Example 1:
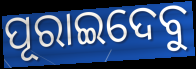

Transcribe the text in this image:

ପୂରାଇଦେବୁ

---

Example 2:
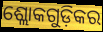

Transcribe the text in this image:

ଶ୍ଲୋକଗୁଡ଼ିକର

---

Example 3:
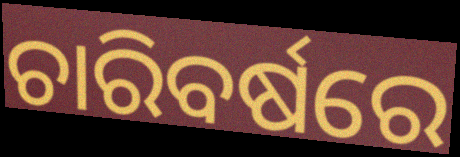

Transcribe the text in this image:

ଚାରିବର୍ଷରେ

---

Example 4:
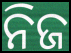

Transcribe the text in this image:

ନିଜ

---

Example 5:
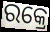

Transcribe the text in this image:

ରକ୍ରେ